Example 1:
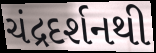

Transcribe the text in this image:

ચંદ્રદર્શનથી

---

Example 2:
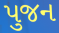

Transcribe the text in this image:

પુજન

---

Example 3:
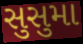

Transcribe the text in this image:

સુસુમા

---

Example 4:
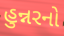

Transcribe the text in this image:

હુન્નરનો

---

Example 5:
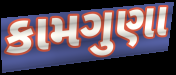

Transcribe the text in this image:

કામગુણા